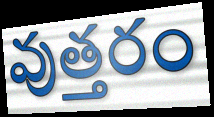
వుత్తరం